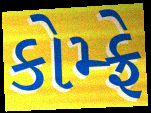
કોમ્ફ્રે